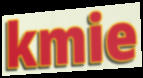
kmie